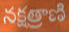
నక్షత్రాణి